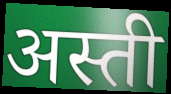
अस्ती